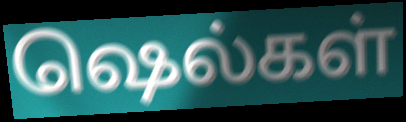
ஷெல்கள்